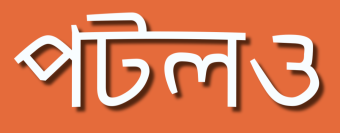
পটলও